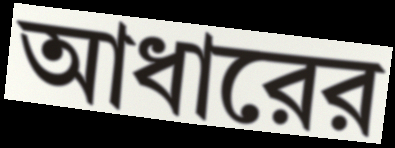
আধারের